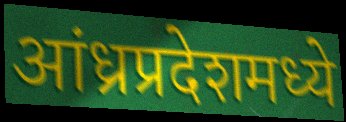
आंध्रप्रदेशमध्ये